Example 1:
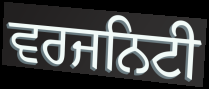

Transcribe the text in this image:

ਵਰਜਨਿਟੀ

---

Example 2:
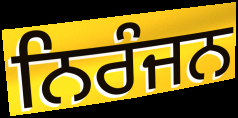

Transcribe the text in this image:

ਨਿਰੰਜਨ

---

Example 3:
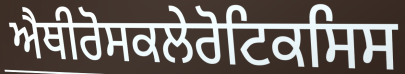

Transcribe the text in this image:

ਐਥੀਰੋਸਕਲੇਰੋਟਿਕਸਿਸ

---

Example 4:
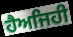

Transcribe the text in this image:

ਹੈਅਜਿਹੀ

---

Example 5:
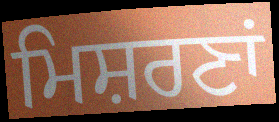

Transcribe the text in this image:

ਮਿਸ਼ਰਣਾਂ